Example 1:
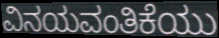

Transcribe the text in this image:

ವಿನಯವಂತಿಕೆಯು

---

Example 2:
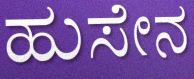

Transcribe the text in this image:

ಹುಸೇನ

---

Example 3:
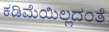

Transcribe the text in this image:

ಕಡಿಮೆಯಿಲ್ಲದಂತೆ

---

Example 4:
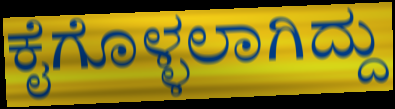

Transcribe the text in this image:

ಕೈಗೊಳ್ಳಲಾಗಿದ್ದು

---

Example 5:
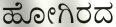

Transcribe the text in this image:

ಹೋಗಿರದ